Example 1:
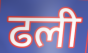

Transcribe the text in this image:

ढली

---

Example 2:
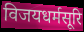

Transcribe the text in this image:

विजयधर्मसूरि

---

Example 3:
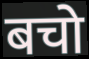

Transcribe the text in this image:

बचो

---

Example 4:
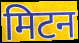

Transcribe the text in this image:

मिटन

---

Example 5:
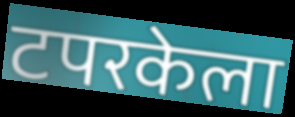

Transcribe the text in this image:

टपरकेला